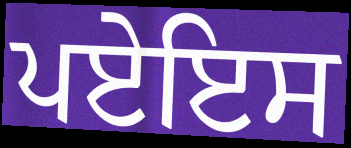
ਪਏਇਸ